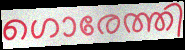
ഗൊരേത്തി